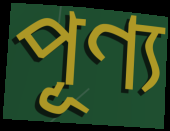
পূণ্য